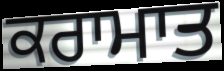
ਕਰਾਮਾਤ